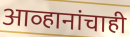
आव्हानांचाही